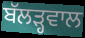
ਬੱਲੜ੍ਹਵਾਲ